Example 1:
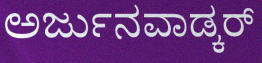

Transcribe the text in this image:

ಅರ್ಜುನವಾಡ್ಕರ್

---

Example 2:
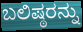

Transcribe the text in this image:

ಬಲಿಷ್ಠರನ್ನು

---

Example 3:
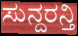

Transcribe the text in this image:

ಸುನ್ದರನ್ತಿ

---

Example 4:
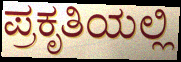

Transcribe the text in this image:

ಪ್ರಕೃತಿಯಲ್ಲಿ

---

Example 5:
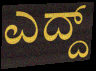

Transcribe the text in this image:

ಎದ್ದ್